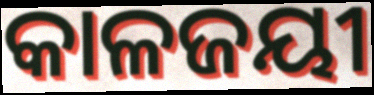
କାଳଜୟୀ